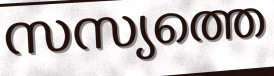
സസ്യത്തെ